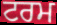
ਟਰਮ